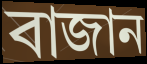
বাজান